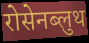
रोसेनब्लुथ